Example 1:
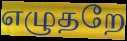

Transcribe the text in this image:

எழுதறே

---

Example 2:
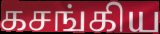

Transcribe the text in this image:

கசங்கிய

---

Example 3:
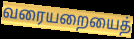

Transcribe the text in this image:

வரையறையைத்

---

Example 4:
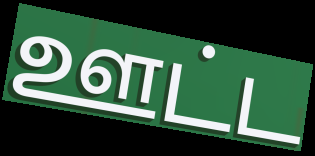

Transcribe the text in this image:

ஊட்ட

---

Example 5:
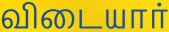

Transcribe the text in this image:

விடையார்